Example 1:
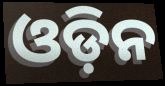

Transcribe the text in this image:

ଓଡ଼ିନ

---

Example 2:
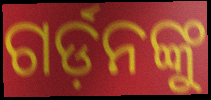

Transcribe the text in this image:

ଗର୍ଡ଼ନଙ୍କୁ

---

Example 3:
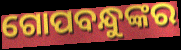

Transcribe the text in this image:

ଗୋପବନ୍ଧୁଙ୍କର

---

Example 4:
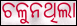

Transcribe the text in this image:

ଚଳୁନଥିଲା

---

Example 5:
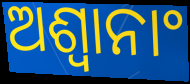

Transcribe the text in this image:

ଅଶ୍ଵାନାଂ